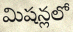
మిషన్లలో